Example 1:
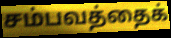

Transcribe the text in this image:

சம்பவத்தைக்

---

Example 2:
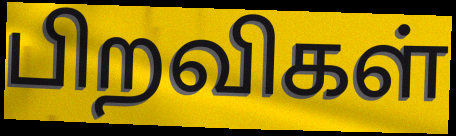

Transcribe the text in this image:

பிறவிகள்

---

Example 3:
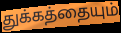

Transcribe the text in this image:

துக்கத்தையும்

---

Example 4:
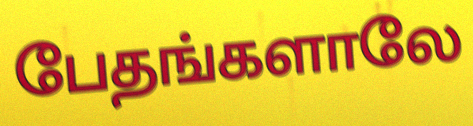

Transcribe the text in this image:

பேதங்களாலே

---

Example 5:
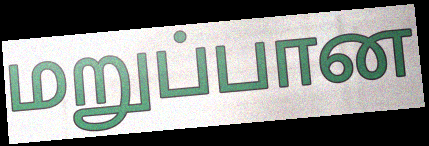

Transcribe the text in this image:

மறுப்பான